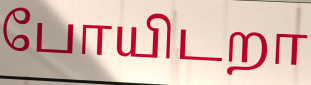
போயிடறா